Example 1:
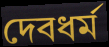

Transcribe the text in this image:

দেবধর্ম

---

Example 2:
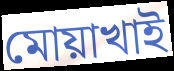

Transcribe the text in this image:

মোয়াখাই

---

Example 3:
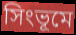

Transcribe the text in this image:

সিংভূমে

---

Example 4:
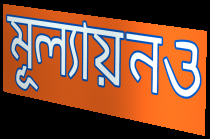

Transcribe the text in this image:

মূল্যায়নও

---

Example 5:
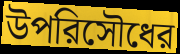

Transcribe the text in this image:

উপরিসৌধের